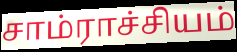
சாம்ராச்சியம்